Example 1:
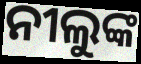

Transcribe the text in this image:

ନୀଲୁଙ୍କ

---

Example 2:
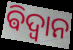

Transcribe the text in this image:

ଵିଦ୍ଵାନ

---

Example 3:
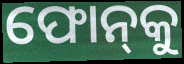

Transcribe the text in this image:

ଫୋନ୍‌କୁ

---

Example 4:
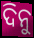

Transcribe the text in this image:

ଦିନୁ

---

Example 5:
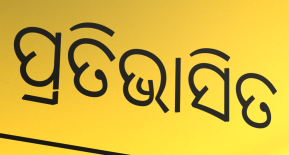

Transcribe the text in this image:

ପ୍ରତିଭାସିତ